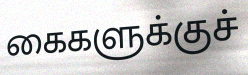
கைகளுக்குச்